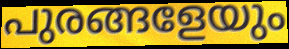
പുരങ്ങളേയും